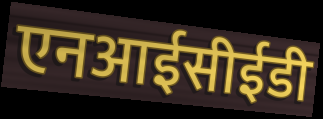
एनआईसीईडी